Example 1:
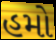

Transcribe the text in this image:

હમો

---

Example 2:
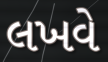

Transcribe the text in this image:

લખવે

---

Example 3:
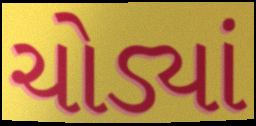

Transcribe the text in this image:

ચોડ્યાં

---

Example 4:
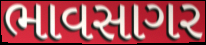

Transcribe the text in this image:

ભાવસાગર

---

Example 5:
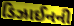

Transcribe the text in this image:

ડિઝાઈનની